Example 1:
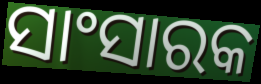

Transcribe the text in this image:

ସାଂସାରକ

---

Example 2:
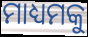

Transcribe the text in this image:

ମାଧ୍ୟମକୁ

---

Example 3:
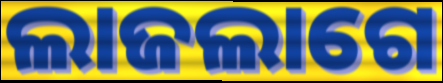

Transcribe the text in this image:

ଲାଜଲାଗେ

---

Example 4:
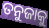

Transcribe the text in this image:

ତନୁଜାକୁ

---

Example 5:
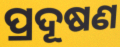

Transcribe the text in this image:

ପ୍ରଦୂଷଣ